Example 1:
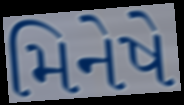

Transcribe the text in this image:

મિનેષે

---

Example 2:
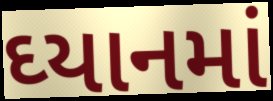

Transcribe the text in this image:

ઘ્યાનમાં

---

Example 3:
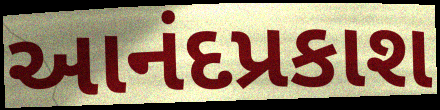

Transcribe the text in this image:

આનંદપ્રકાશ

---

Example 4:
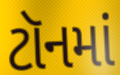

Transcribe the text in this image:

ટૉનમાં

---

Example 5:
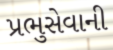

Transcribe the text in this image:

પ્રભુસેવાની